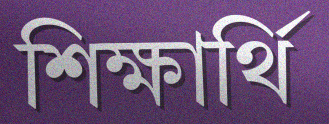
শিক্ষার্থি